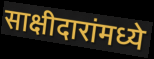
साक्षीदारांमध्ये